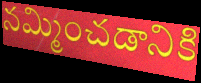
నమ్మించడానికి